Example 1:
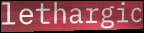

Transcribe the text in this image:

lethargic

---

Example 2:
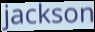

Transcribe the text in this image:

jackson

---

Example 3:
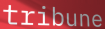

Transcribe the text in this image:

tribune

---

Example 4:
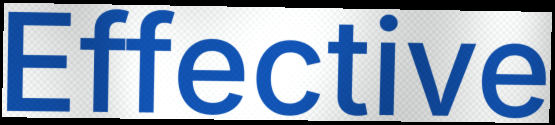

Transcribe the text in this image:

Effective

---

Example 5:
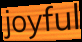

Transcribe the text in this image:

joyful